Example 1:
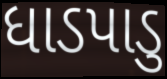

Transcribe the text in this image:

ધાડપાડુ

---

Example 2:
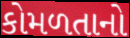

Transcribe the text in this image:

કોમળતાનો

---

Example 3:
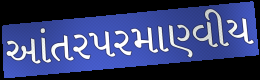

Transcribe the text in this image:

આંતરપરમાણ્વીય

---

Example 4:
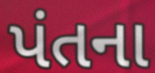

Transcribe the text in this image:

પંતના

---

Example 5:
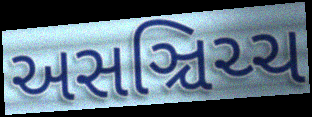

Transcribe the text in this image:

અસઞ્ચિચ્ચ